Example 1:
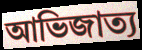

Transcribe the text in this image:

আভিজাত্য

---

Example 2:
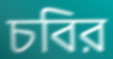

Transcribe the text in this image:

চবির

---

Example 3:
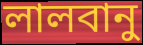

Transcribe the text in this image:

লালবানু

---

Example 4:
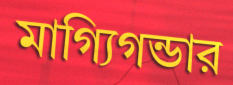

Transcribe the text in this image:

মাগ্যিগন্ডার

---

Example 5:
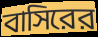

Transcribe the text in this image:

বাসিরের